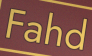
Fahd